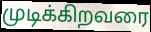
முடிக்கிறவரை